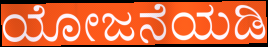
ಯೋಜನೆಯಡಿ